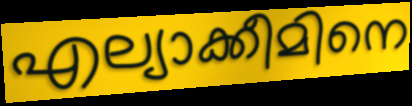
എല്യാക്കീമിനെ